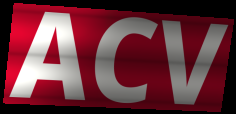
ACV